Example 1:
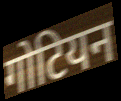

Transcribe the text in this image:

गोटियन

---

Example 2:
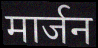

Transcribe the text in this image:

मार्जन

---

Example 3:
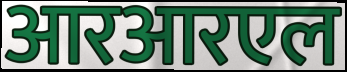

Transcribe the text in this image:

आरआरएल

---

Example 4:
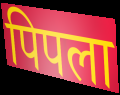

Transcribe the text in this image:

पिपला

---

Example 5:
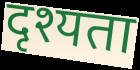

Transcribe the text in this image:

दृश्यता